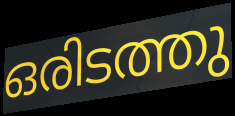
ഒരിടത്തു